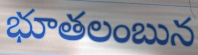
భూతలంబున